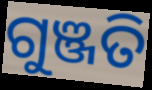
ଗୁଞ୍ଜତି